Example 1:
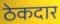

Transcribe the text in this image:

ठेकदार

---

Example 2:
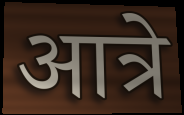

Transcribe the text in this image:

आत्रे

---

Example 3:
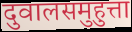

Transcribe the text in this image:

दुवालसमुहुत्ता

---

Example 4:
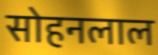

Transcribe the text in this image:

सोहनलाल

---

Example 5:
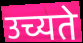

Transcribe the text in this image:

उच्यते